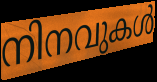
നിനവുകൾ